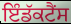
ਇੰਡੱਕਟੈਂਸ